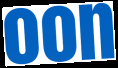
oon